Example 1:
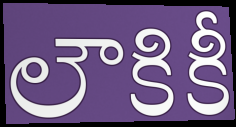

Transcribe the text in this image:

లౌకికీ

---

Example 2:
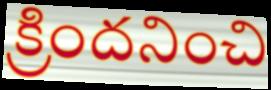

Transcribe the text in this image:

క్రిందనించి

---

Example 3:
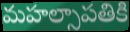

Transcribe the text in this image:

మహల్సాపతికి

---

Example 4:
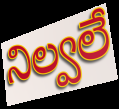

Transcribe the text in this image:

నిల్వలే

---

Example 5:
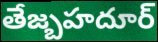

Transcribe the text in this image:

తేజ్బహదూర్